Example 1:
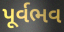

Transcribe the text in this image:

પૂર્વભવ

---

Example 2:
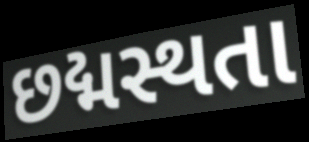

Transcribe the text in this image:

છદ્મસ્થતા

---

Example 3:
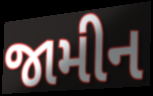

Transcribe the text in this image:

જામીન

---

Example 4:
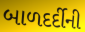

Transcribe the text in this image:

બાળદર્દીની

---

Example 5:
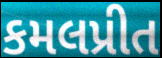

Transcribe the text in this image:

કમલપ્રીત